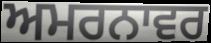
ਅਮਰਨਾਵਰ